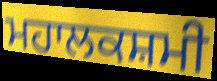
ਮਹਾਲਕਸ਼ਮੀ